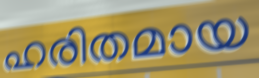
ഹരിതമായ